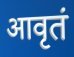
आवृतं